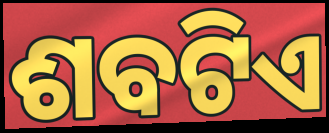
ଶବଟିଏ